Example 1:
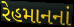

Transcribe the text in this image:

રેહમાનનાં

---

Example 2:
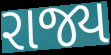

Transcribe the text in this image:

રાજ્ય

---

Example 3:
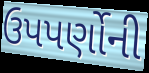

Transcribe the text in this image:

ઉપપર્ણોની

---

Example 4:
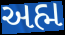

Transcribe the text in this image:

અહ્મ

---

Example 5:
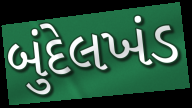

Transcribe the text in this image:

બુંદેલખંડ